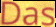
Das